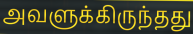
அவளுக்கிருந்தது